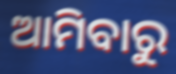
ଆମିବାରୁ